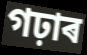
গঢ়াৰ